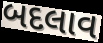
બદલાવ